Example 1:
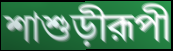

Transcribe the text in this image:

শাশুড়ীরূপী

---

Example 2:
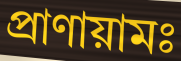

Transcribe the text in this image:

প্রাণায়ামঃ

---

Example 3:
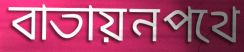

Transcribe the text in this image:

বাতায়নপথে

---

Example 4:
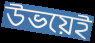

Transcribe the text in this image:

উভয়েই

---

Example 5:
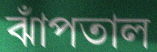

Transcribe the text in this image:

ঝাঁপতাল